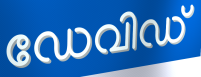
ഡേവിഡ്